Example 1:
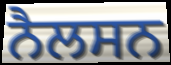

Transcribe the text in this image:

ਨੈਲਸਨ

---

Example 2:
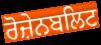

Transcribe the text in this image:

ਰੋਜ਼ੇਨਬਲਿਟ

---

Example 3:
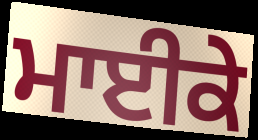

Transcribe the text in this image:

ਮਾਈਕੇ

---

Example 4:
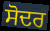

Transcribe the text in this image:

ਸੋਦਰ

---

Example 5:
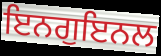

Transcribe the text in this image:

ਇਨਗੁਇਨਲ